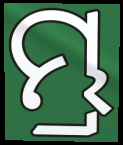
ମ୍ଭ୍ର